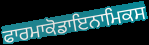
ਫਾਰਮਾਕੋਡਾਇਨਾਮਿਕਸ